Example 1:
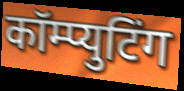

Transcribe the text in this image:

कॉम्प्युटिंग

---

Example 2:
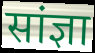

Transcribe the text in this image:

सांज्ञा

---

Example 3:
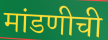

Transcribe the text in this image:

मांडणीची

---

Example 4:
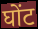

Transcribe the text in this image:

घोंट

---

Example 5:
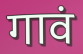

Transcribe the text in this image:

गावं